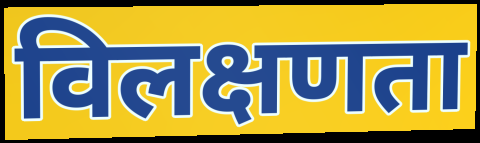
विलक्षणता